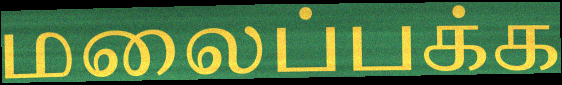
மலைப்பக்க